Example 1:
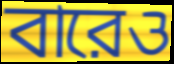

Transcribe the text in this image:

বারেও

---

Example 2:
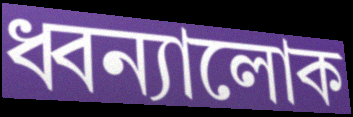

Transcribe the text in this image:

ধ্বন্যালোক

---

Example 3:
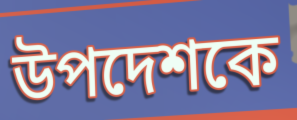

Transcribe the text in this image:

উপদেশকে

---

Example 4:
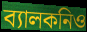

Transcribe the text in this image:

ব্যালকনিও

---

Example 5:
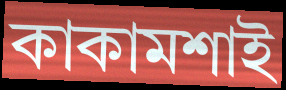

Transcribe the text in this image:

কাকামশাই